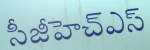
సీజీహెచ్ఎస్